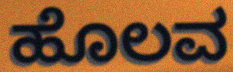
ಹೊಲವ